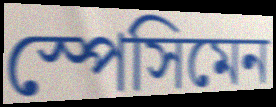
স্পেসিমেন